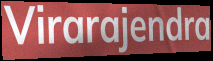
Virarajendra